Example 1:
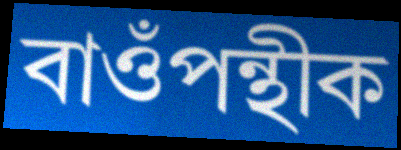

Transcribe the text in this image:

বাওঁপন্থীক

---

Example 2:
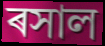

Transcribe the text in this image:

ৰসাল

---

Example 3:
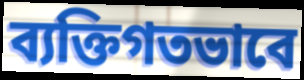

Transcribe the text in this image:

ব্যক্তিগতভাবে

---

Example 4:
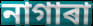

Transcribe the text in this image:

নাগাৰা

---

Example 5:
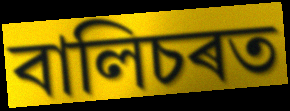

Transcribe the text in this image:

বালিচৰত